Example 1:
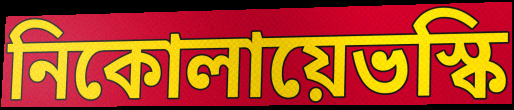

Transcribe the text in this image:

নিকোলায়েভস্কি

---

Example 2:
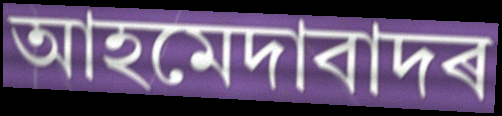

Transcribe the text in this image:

আহমেদাবাদৰ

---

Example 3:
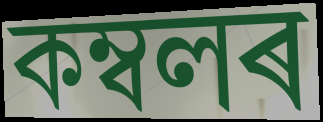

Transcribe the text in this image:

কম্বলৰ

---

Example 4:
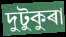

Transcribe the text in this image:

দুটুকুৰা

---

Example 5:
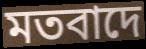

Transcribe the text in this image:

মতবাদে